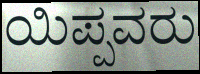
ಯಿಪ್ಪವರು